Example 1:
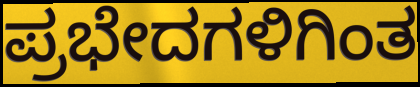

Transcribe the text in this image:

ಪ್ರಭೇದಗಳಿಗಿಂತ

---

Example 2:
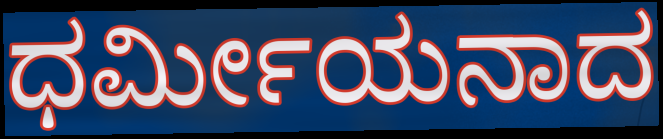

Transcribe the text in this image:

ಧರ್ಮೀಯನಾದ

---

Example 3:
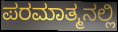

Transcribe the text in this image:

ಪರಮಾತ್ಮನಲ್ಲಿ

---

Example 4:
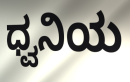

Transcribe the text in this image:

ಧ್ವನಿಯ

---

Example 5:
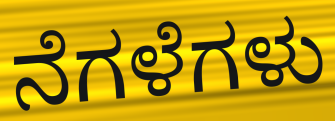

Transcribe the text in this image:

ನೆಗಳೆಗಳು